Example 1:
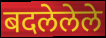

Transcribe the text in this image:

बदलेलेले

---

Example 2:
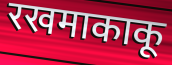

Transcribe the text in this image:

रखमाकाकू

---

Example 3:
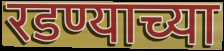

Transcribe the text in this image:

रडण्याच्या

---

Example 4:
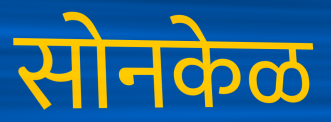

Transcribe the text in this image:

सोनकेळ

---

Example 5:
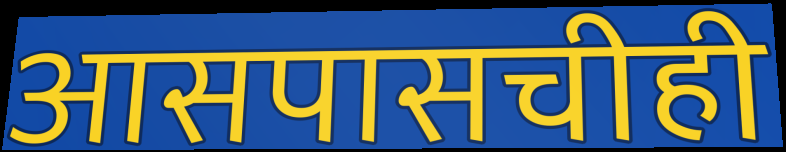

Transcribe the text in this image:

आसपासचीही